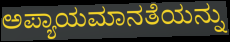
ಅಪ್ಯಾಯಮಾನತೆಯನ್ನು